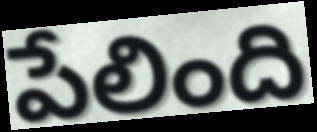
పేలింది